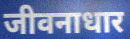
जीवनाधार